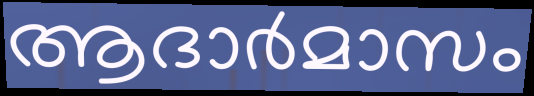
ആദാർമാസം